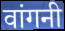
वांगनी